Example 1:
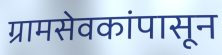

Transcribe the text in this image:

ग्रामसेवकांपासून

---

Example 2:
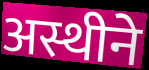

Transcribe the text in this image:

अस्थीने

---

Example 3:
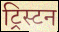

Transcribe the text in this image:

ट्रिस्टन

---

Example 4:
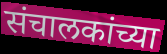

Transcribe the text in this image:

संचालकांच्या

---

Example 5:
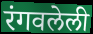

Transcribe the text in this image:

रंगवलेली